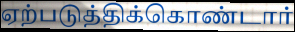
ஏற்படுத்திக்கொண்டார்